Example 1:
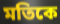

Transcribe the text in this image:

মতিকে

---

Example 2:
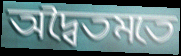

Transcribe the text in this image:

অদ্বৈতমতে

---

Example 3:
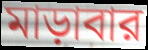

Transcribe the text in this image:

মাড়াবার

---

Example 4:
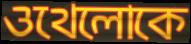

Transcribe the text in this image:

ওথেলোকে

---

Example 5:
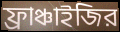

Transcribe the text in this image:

ফ্রাঞ্চাইজির